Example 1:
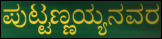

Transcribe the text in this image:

ಪುಟ್ಟಣ್ಣಯ್ಯನವರ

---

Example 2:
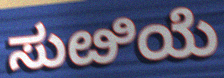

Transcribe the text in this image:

ಸುೞಿಯೆ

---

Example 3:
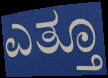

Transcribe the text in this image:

ಎತ್ತೂ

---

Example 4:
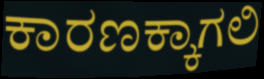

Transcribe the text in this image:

ಕಾರಣಕ್ಕಾಗಲಿ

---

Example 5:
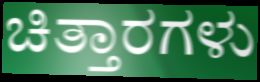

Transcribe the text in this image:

ಚಿತ್ತಾರಗಳು